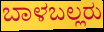
ಬಾಳಬಲ್ಲರು